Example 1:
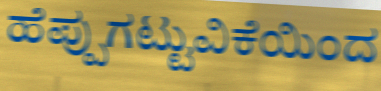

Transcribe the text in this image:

ಹೆಪ್ಪುಗಟ್ಟುವಿಕೆಯಿಂದ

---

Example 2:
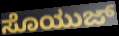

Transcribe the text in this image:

ಸೊಯುಜ್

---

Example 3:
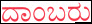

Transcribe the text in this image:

ದಾಂಬರು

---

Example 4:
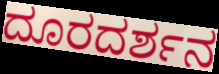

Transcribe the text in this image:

ದೂರದರ್ಶನ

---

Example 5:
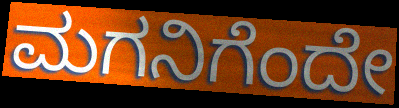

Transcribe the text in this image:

ಮಗನಿಗೆಂದೇ